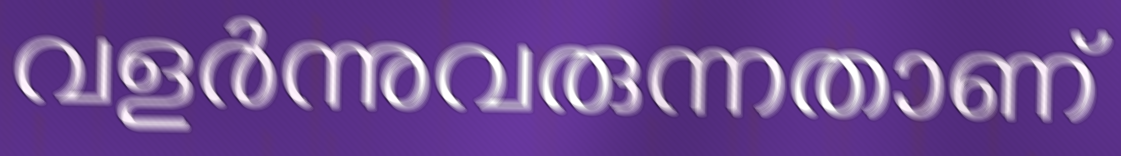
വളർന്നുവരുന്നതാണ്